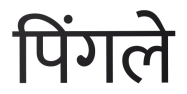
पिंगले